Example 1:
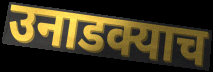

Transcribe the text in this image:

उनाडक्याच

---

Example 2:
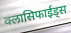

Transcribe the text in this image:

क्लासिफाईड्स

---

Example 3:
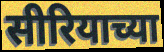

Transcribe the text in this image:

सीरियाच्या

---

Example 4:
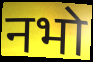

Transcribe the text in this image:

नभो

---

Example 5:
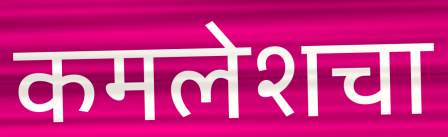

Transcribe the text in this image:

कमलेशचा